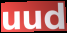
uud